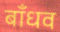
बाँधव